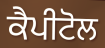
ਕੈਪੀਟੋਲ